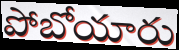
పోబోయారు